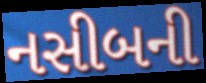
નસીબની